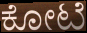
ಕೋಟೆ